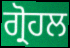
ਗ੍ਰੋਹਲ